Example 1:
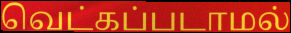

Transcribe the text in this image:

வெட்கப்படாமல்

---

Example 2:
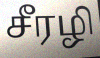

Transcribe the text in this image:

சீரழி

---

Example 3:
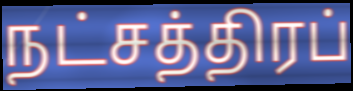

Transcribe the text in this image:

நட்சத்திரப்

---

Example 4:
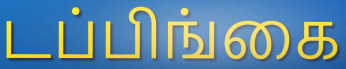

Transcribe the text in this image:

டப்பிங்கை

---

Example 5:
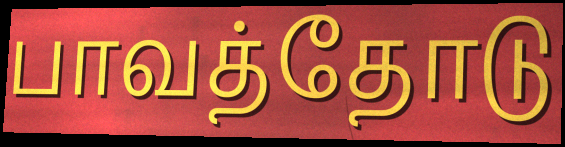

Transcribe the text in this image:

பாவத்தோடு